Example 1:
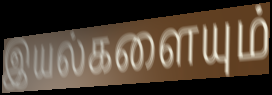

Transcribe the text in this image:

இயல்களையும்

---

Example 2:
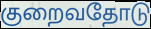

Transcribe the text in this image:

குறைவதோடு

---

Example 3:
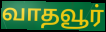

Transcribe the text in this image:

வாதவூர்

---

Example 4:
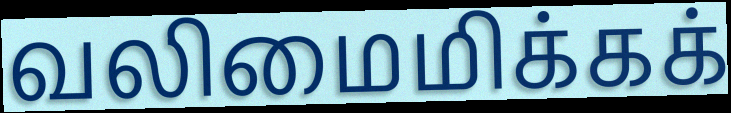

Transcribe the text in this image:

வலிமைமிக்கக்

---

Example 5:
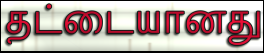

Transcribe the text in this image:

தட்டையானது